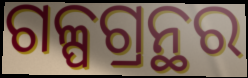
ଗଳ୍ପଗ୍ରନ୍ଥର